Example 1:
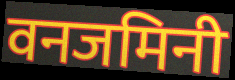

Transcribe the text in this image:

वनजमिनी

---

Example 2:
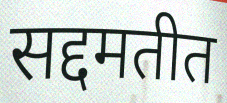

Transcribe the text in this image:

सद्दमतीत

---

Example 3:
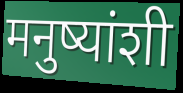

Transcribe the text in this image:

मनुष्यांशी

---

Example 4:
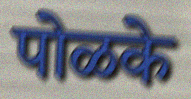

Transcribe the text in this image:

पोळके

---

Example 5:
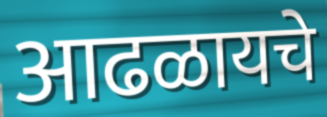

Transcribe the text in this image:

आढळायचे